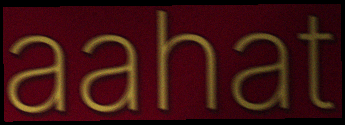
aahat